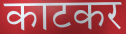
काटकर